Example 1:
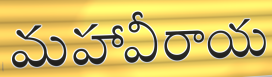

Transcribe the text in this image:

మహావీరాయ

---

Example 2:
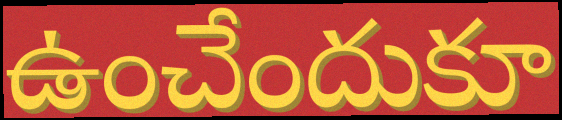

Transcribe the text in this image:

ఉంచేందుకూ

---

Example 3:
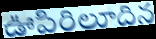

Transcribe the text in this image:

ఊపిరిలూదిన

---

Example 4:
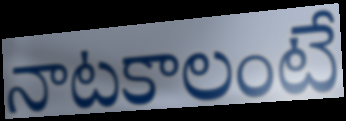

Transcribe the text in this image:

నాటకాలంటే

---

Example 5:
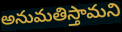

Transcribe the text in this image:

అనుమతిస్తామని